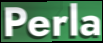
Perla